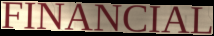
FINANCIAL